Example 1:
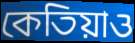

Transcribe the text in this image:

কেতিয়াও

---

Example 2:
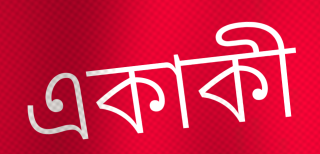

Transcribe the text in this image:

একাকী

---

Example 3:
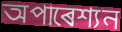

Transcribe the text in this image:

অপাৰেশ্যন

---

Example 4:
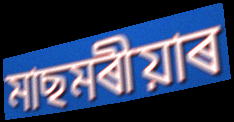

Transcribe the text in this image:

মাছমৰীয়াৰ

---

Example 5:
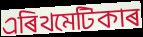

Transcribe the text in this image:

এৰিথমেটিকাৰ